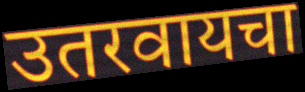
उतरवायचा